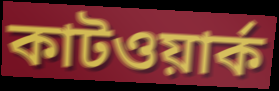
কাটওয়ার্ক